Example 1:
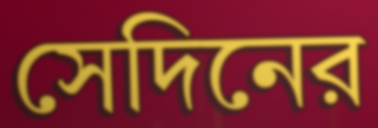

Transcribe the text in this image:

সেদিনের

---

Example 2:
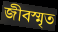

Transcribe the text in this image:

জীবস্মৃত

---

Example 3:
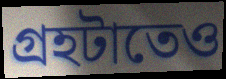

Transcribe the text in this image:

গ্রহটাতেও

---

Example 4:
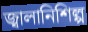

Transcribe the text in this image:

জ্বালানিশিল্প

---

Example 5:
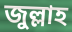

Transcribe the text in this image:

জুল্লাহ